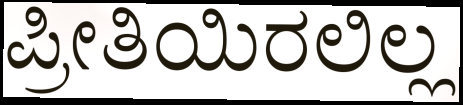
ಪ್ರೀತಿಯಿರಲಿಲ್ಲ